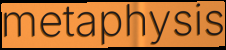
metaphysis